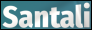
Santali